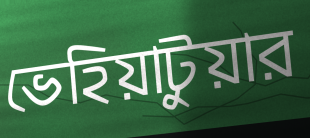
ভেহিয়াটুয়ার